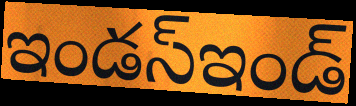
ఇండస్ఇండ్